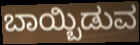
ಬಾಯ್ಬಿಡುವ